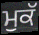
ਮੁਕੱ